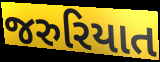
જરુરિયાત